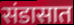
संडासात